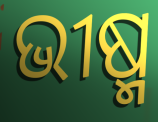
ଭୀଷ୍ମ